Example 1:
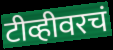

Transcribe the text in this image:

टीव्हीवरचं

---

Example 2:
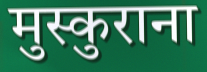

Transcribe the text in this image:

मुस्कुराना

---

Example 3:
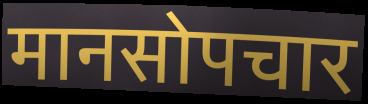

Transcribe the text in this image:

मानसोपचार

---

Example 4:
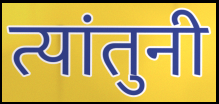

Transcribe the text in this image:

त्यांतुनी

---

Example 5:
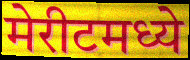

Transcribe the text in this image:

मेरीटमध्ये